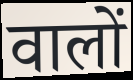
वालों